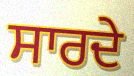
ਸਾਰਦੇ